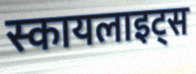
स्कायलाइट्स